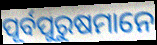
ପୂର୍ବପୁରୁଷମାନେ